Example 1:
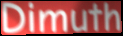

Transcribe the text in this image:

Dimuth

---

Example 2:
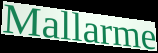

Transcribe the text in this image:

Mallarme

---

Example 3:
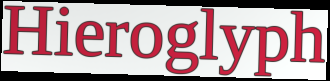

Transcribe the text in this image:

Hieroglyph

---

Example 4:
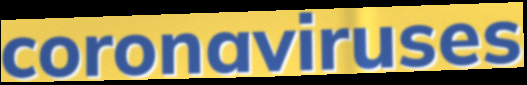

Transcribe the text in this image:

coronaviruses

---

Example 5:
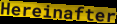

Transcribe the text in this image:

Hereinafter